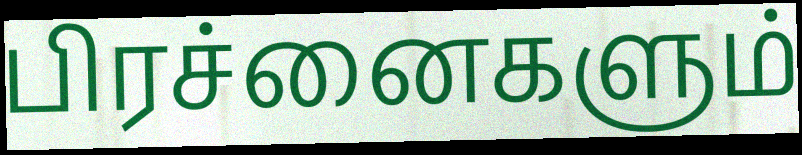
பிரச்னைகளும்